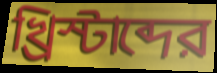
খ্রিস্টাব্দের